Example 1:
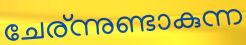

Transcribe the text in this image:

ചേര്ന്നുണ്ടാകുന്ന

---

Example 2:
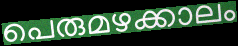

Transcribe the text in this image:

പെരുമഴക്കാലം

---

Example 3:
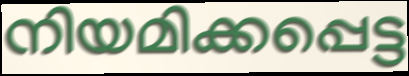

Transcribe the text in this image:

നിയമിക്കപ്പെട്ട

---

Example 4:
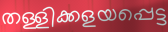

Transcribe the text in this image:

തള്ളിക്കളയപ്പെട്ട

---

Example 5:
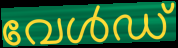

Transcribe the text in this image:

വേൾഡ്